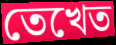
তেখেত